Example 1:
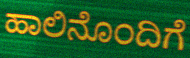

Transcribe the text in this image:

ಹಾಲಿನೊಂದಿಗೆ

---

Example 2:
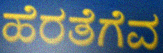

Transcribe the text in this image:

ಹೆರತೆಗೆವ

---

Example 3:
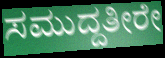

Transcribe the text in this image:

ಸಮುದ್ದತೀರೇ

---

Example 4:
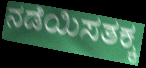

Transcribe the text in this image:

ನಡೆಯಿಸತಕ್ಕ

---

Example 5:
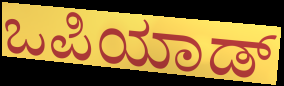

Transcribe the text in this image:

ಒಪಿಯಾಡ್